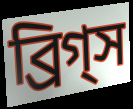
ব্রিগ্‌স